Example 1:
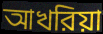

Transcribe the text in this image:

আখরিয়া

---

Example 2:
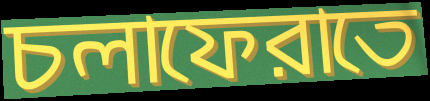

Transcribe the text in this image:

চলাফেরাতে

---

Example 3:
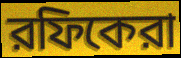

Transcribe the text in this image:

রফিকেরা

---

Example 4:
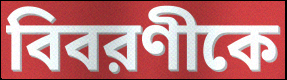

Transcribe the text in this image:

বিবরণীকে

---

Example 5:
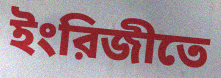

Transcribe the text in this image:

ইংরিজীতে